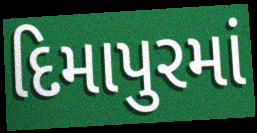
દિમાપુરમાં